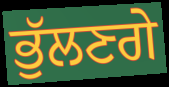
ਭੁੱਲਣਗੇ